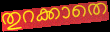
തുറക്കാതെ